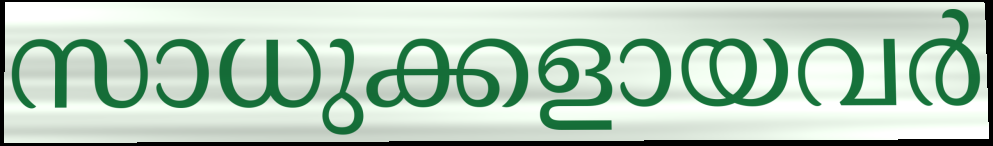
സാധുക്കളായവർ